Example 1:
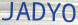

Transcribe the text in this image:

JADYO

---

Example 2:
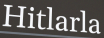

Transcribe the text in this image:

Hitlarla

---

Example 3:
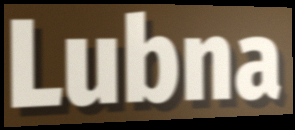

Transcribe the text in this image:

Lubna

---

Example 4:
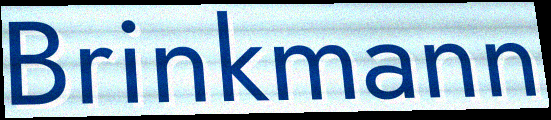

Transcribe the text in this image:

Brinkmann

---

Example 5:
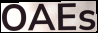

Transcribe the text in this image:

OAEs